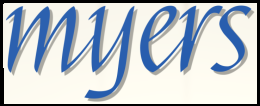
myers